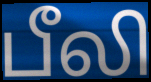
பீலி